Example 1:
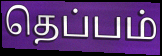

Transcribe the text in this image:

தெப்பம்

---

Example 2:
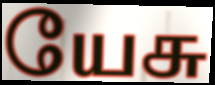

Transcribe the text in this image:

யேசு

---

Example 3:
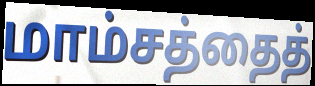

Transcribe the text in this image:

மாம்சத்தைத்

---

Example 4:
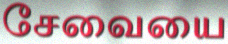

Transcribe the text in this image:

சேவையை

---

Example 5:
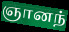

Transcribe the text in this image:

ஞானந்